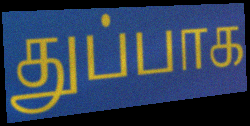
துப்பாக